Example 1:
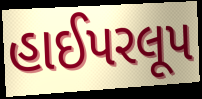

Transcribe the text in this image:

હાઈપરલૂપ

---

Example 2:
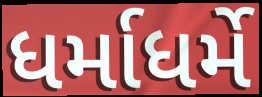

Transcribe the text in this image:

ધર્માધર્મે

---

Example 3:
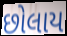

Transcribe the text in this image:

છોલાય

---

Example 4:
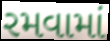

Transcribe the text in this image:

રમવામાં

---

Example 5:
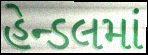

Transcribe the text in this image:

હેન્ડલમાં